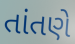
તાંતણે